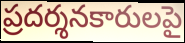
ప్రదర్శనకారులపై